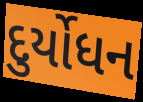
દુર્યોધન